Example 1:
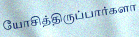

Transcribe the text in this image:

யோசித்திருப்பார்களா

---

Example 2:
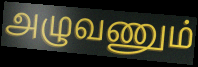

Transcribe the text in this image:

அழுவணும்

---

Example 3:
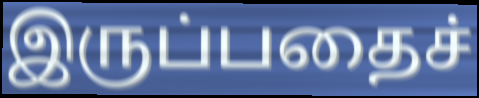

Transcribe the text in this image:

இருப்பதைச்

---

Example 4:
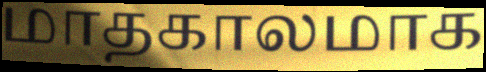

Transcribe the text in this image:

மாதகாலமாக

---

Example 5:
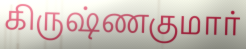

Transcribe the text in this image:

கிருஷ்ணகுமார்